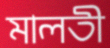
মালতী